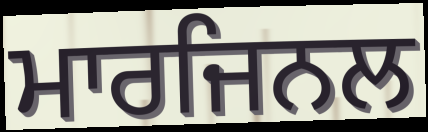
ਮਾਰਜਿਨਲ